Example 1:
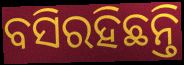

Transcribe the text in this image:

ବସିରହିଛନ୍ତି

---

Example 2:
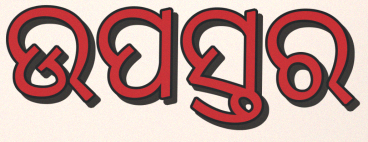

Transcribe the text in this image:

ଉପସ୍ତର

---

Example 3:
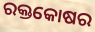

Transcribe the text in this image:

ରକ୍ତକୋଷର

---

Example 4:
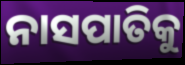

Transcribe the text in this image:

ନାସପାତିକୁ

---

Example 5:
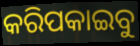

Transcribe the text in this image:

କରିପକାଇବୁ